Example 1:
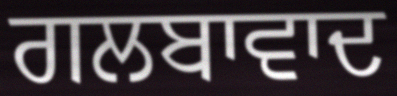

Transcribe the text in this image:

ਗਲਬਾਵਾਦ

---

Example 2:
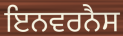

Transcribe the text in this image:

ਇਨਵਰਨੈਸ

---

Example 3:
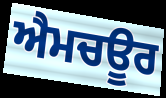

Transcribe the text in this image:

ਐਮਚਊਰ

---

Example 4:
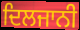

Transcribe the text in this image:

ਦਿਲਜਾਨੀ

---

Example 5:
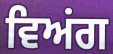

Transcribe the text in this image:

ਵਿਅਂਗ